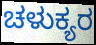
ಚಳುಕ್ಯರ